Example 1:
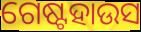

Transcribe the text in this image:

ଗେଷ୍ଟହାଉସ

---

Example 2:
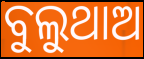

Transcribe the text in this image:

ବୁଲୁଥାଅ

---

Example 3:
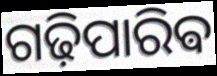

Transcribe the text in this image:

ଗଢ଼ିପାରିଵ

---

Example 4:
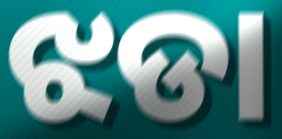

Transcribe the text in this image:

ଝଡା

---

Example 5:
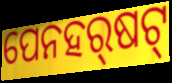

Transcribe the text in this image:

ପେନହର୍‍ଷଟ୍